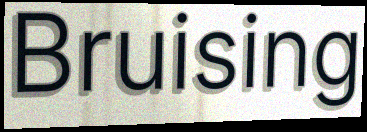
Bruising